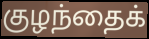
குழந்தைக்